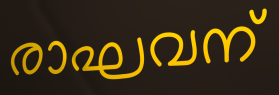
രാഘവന്